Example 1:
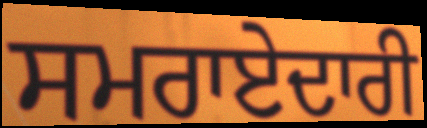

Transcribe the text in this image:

ਸਮਰਾਏਦਾਰੀ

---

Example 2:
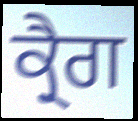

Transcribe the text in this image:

ਕ੍ਰੈਗ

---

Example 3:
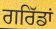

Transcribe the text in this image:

ਗਰਿੱਡਾਂ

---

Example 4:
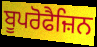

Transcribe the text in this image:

ਬੂਪਰੋਫੈਜ਼ਿਨ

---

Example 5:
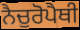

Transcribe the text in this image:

ਨੈਚੁਰੋਪੈਥੀ